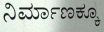
ನಿರ್ಮಾಣಕ್ಕೂ